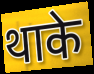
थाके